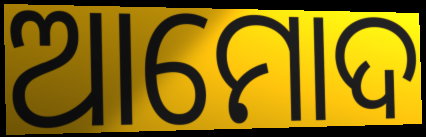
ଆମୋଦ